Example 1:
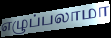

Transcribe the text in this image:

எழுப்பலாமா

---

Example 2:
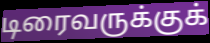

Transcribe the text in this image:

டிரைவருக்குக்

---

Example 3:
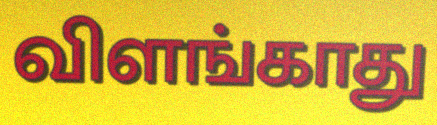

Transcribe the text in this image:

விளங்காது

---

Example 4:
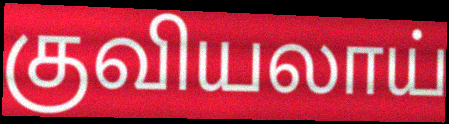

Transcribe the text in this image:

குவியலாய்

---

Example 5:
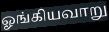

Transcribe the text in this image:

ஓங்கியவாறு